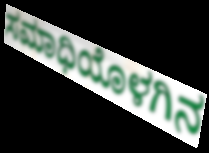
ಸಮಾಧಿಯೊಳಗಿನ